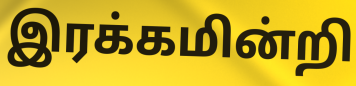
இரக்கமின்றி